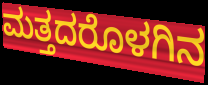
ಮತ್ತದರೊಳಗಿನ